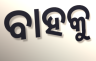
ବାହକୁ